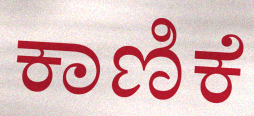
ಕಾಣಿಕೆ